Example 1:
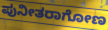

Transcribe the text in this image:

ಪುನೀತರಾಗೋಣ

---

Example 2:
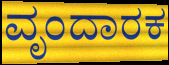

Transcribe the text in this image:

ವೃಂದಾರಕ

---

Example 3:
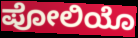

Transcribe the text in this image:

ಪೋಲಿಯೊ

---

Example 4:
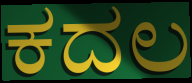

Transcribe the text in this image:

ಕದಲ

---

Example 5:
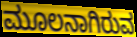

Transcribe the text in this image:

ಮೂಲನಾಗಿರುವ